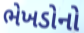
ભેખડોનો